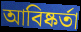
আবিষ্কর্তা